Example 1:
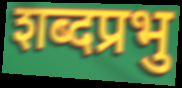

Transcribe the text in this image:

शब्दप्रभु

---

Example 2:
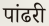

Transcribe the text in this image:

पांढरी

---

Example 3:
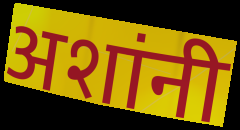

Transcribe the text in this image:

अशांनी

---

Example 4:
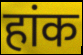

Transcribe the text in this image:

हांक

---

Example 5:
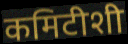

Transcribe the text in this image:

कमिटीशी